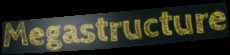
Megastructure